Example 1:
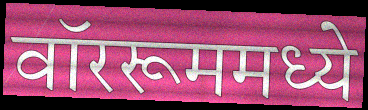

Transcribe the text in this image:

वॉररूममध्ये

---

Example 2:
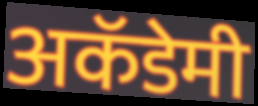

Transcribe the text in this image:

अकॅडेमी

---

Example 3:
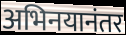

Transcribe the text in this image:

अभिनयानंतर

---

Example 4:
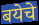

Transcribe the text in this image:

बयेचे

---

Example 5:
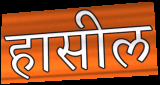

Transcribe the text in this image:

हासील